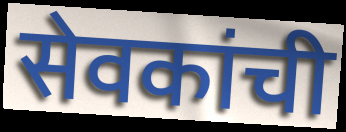
सेवकांची